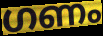
ഗണം